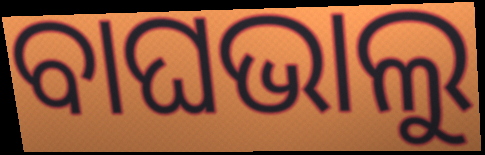
ବାଘଭାଲୁ